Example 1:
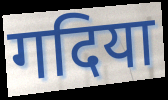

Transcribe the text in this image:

गदिया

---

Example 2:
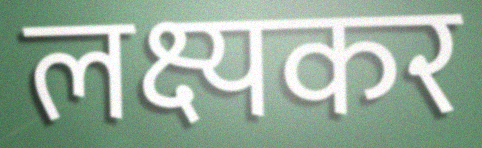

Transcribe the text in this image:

लक्ष्यकर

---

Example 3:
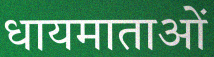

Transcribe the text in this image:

धायमाताओं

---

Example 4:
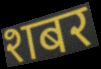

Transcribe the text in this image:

शबर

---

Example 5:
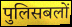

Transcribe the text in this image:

पुलिसबलों